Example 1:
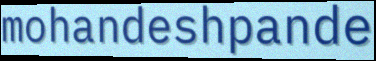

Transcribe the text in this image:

mohandeshpande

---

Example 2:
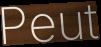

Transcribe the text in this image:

Peut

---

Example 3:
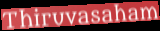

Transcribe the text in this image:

Thiruvasaham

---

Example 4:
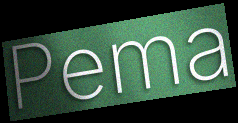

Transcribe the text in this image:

Pema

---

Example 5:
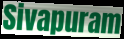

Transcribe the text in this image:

Sivapuram